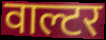
वाल्टर